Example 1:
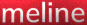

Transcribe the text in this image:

meline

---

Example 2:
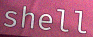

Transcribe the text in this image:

shell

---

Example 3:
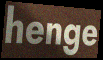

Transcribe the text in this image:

henge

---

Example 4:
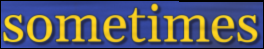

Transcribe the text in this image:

sometimes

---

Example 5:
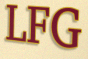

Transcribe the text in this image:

LFG